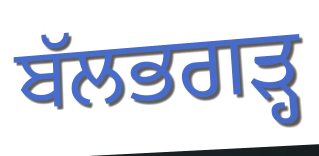
ਬੱਲਭਗੜ੍ਹ